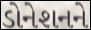
ડોનેશનને